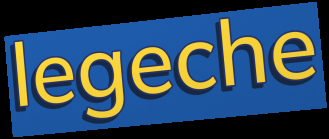
legeche